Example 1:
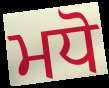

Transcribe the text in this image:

ਮਧੋ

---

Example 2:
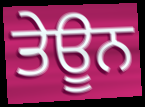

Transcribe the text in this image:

ਤੇਊਨ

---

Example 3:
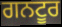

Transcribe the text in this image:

ਗਨਟੂਰ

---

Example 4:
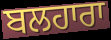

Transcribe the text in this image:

ਬਲਹਾਰਾ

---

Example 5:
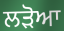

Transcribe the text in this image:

ਲੜੋਆ